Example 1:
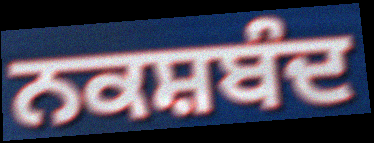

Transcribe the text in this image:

ਨਕਸ਼ਬੰਦ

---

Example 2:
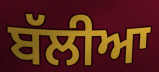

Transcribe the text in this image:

ਬੱਲੀਆ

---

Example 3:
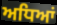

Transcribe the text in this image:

ਅਧਿਆਂ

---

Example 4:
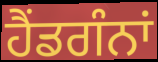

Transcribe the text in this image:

ਹੈਂਡਗੰਨਾਂ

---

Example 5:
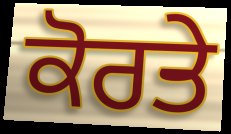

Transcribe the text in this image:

ਕੋਰਤੇ